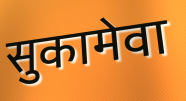
सुकामेवा